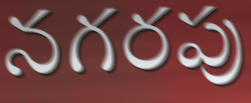
నగరపు